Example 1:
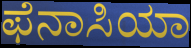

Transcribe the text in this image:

ಫೆನಾಸಿಯಾ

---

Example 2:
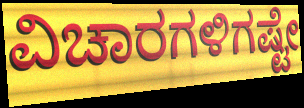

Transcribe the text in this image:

ವಿಚಾರಗಳಿಗಷ್ಟೇ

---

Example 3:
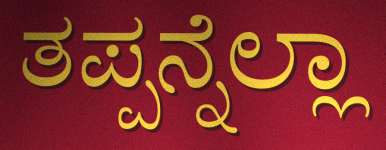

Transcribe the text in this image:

ತಪ್ಪನ್ನೆಲ್ಲಾ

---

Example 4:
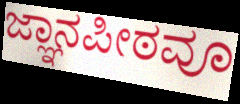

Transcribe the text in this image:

ಜ್ಞಾನಪೀಠವೂ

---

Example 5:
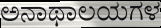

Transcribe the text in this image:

ಅನಾಥಾಲಯಗಳ